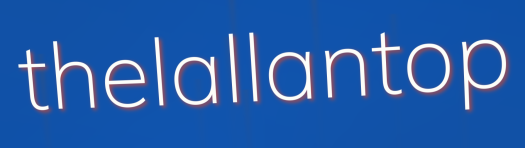
thelallantop